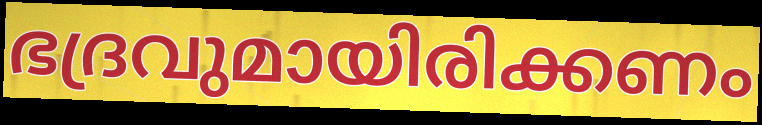
ഭദ്രവുമായിരിക്കണം